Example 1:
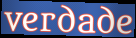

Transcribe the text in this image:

verdade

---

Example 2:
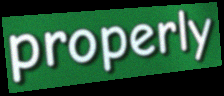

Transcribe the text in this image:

properly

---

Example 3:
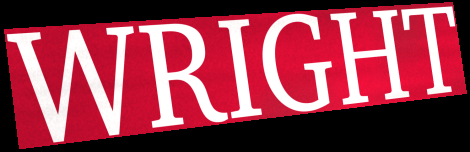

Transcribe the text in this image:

WRIGHT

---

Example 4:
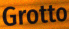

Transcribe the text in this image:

Grotto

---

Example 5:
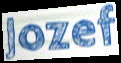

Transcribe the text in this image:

Jozef